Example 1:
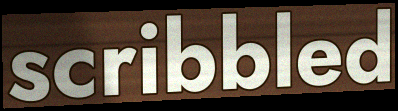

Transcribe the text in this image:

scribbled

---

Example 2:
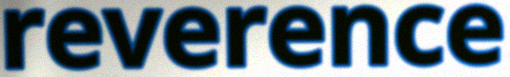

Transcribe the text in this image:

reverence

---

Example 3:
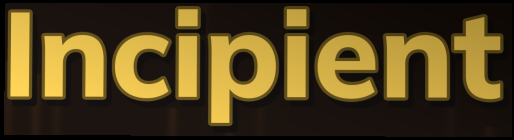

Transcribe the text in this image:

Incipient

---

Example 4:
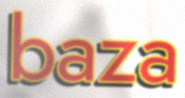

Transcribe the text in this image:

baza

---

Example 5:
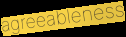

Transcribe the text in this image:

agreeableness